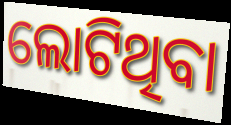
ଲୋଟିଥିବା